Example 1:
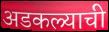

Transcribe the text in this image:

अडकल्याची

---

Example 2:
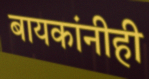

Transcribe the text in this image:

बायकांनीही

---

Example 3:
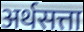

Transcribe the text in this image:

अर्थसत्ता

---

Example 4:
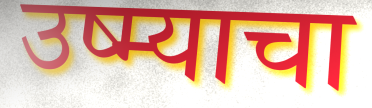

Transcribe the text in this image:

उष्म्याचा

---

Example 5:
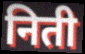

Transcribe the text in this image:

निती